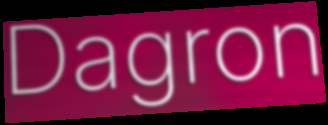
Dagron